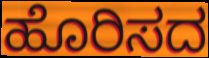
ಹೊರಿಸದ